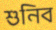
শুনিব